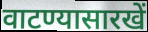
वाटण्यासारखें